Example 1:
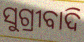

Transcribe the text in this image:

ସୁଗ୍ରୀବାଦି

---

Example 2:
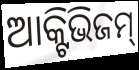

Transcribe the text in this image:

ଆକ୍ଟିଭିଜମ୍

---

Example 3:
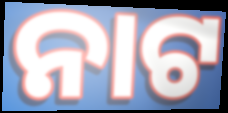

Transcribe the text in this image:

ନାଟ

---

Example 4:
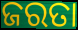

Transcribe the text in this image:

ଜରତା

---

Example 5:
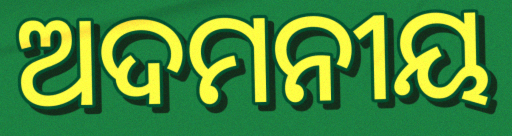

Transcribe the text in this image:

ଅଦମନୀୟ